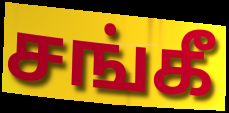
சங்கீ